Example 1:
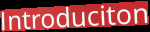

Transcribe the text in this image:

Introduciton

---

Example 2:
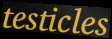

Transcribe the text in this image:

testicles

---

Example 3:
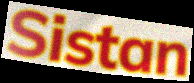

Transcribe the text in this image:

Sistan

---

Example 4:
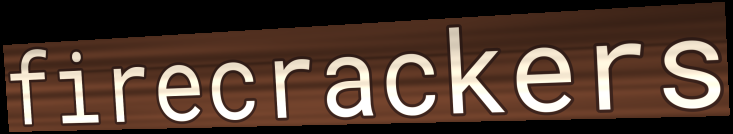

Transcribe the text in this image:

firecrackers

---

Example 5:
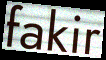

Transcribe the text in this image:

fakir